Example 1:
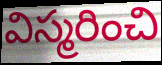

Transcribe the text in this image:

విస్మరించి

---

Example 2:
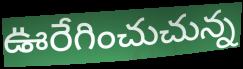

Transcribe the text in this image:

ఊరేగించుచున్న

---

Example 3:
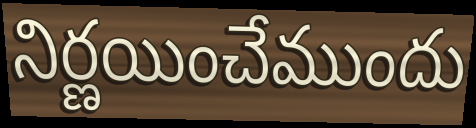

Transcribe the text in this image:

నిర్ణయించేముందు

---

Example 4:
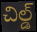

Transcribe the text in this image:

చిల్డ్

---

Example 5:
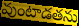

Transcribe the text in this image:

వుంటాడతను